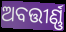
ଅବତ୍ତୀର୍ଣ୍ଣ